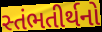
સ્તંભતીર્થનો